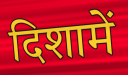
दिशामें